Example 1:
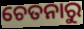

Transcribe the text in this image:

ଚେତନାରୁ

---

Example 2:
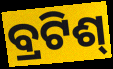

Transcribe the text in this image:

ବ୍ରଟିଶ୍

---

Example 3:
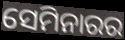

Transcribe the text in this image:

ସେମିନାରର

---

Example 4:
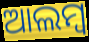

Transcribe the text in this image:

ଆଲମ୍ବ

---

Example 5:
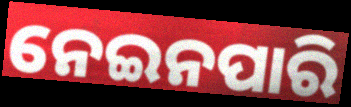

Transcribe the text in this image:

ନେଇନପାରି